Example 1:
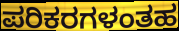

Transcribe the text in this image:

ಪರಿಕರಗಳಂತಹ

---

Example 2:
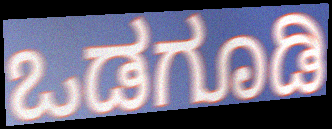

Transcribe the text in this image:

ಒಡಗೂಡಿ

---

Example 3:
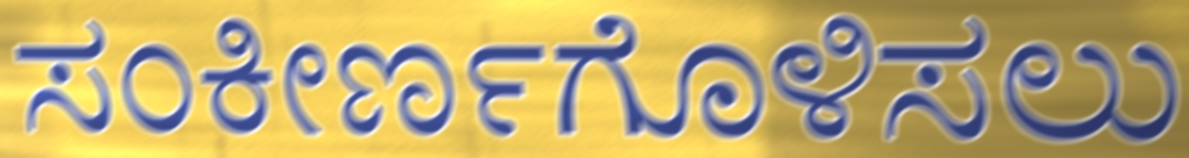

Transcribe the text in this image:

ಸಂಕೀರ್ಣಗೊಳಿಸಲು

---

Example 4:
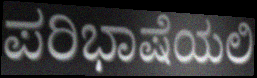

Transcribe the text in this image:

ಪರಿಭಾಷೆಯಲಿ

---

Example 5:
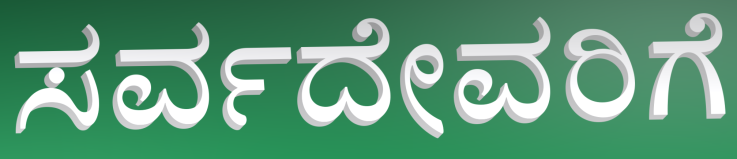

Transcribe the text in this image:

ಸರ್ವದೇವರಿಗೆ